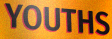
YOUTHS